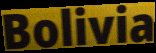
Bolivia